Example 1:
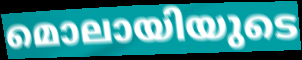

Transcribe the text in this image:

മൊലായിയുടെ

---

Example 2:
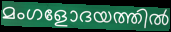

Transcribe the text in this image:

മംഗളോദയത്തിൽ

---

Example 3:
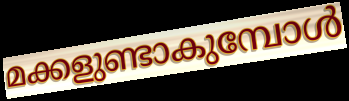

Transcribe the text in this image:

മക്കളുണ്ടാകുമ്പോൾ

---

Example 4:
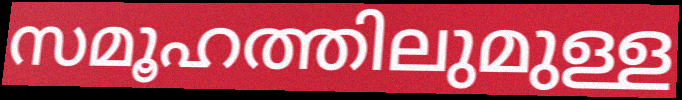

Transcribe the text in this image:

സമൂഹത്തിലുമുള്ള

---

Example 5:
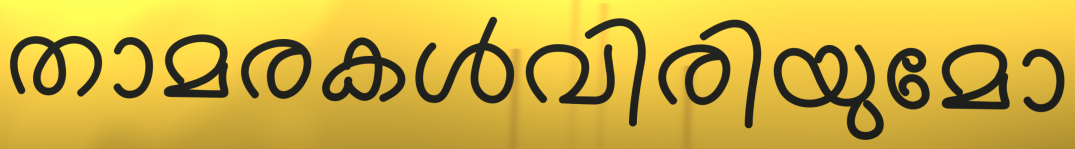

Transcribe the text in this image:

താമരകൾവിരിയുമോ